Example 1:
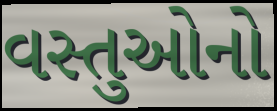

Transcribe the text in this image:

વસ્તુઓનો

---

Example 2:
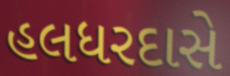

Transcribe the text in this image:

હલધરદાસે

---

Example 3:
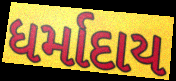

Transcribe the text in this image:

ધર્માદાય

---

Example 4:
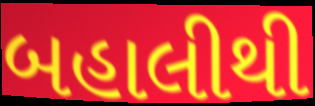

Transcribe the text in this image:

બહાલીથી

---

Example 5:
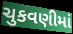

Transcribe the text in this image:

ચુકવણીમાં